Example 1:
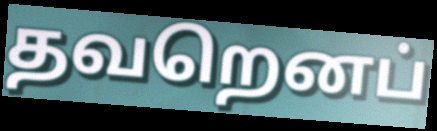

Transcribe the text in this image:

தவறெனப்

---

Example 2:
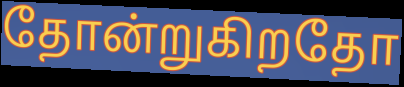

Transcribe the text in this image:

தோன்றுகிறதோ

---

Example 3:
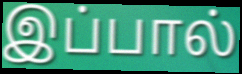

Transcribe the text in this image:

இப்பால்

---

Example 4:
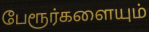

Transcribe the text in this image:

பேரூர்களையும்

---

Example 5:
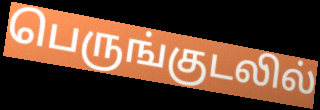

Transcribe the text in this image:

பெருங்குடலில்